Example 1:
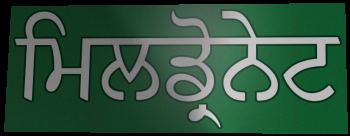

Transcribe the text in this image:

ਮਿਲਡ੍ਰੋਨੇਟ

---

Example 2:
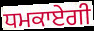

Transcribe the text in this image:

ਧਮਕਾਏਗੀ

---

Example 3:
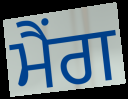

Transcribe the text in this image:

ਮੈਂਗ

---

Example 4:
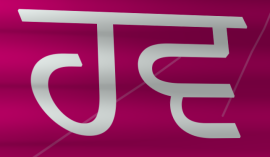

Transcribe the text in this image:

ਹਵ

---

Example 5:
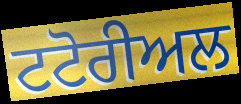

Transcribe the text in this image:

ਟਟੋਰੀਅਲ